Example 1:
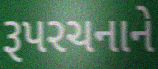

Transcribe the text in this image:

રૂપરચનાને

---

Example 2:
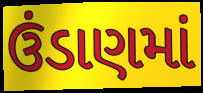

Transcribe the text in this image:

ઉંડાણમાં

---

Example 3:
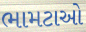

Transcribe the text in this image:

ભામટાઓ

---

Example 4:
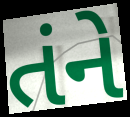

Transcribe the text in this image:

તંને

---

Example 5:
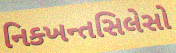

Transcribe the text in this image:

નિક્ખન્તસિલેસો